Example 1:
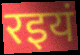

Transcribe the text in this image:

रइयं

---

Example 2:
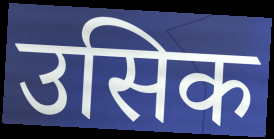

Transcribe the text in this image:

उसिक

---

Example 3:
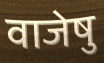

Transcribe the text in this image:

वाजेषु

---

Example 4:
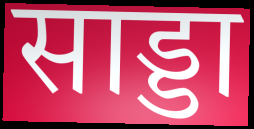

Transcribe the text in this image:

साड्डा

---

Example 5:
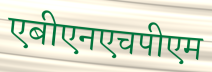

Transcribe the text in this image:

एबीएनएचपीएम